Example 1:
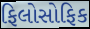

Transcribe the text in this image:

ફિલોસોફિક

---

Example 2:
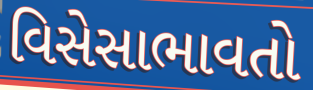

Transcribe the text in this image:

વિસેસાભાવતો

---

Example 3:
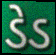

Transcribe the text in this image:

ડેડ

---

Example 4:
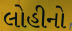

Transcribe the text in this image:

લોહીનો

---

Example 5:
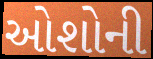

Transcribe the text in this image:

ઓશોની